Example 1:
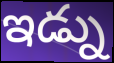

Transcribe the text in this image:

ఇడ్ను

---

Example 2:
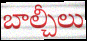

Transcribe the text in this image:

బాల్చీలు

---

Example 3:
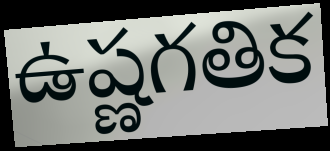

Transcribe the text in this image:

ఉష్ణగతిక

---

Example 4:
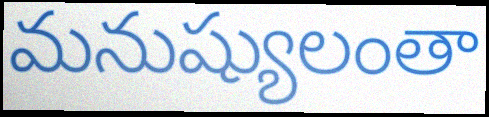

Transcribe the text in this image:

మనుష్యులంతా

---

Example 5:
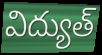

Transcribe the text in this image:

విద్యుత్